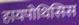
हायपोथिसिस